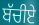
ਬੱਚੀਏ